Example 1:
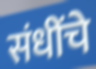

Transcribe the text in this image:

संधींचे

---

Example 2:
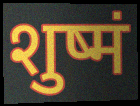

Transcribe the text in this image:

शुष्मं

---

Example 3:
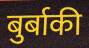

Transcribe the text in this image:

बुर्बाकी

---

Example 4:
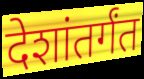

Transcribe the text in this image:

देशांतर्गंत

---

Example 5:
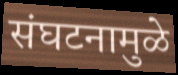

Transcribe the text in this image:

संघटनामुळे